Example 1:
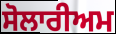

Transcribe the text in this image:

ਸੋਲਾਰੀਅਮ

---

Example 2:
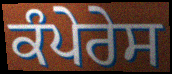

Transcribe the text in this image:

ਕੰਪੇਰੇਸ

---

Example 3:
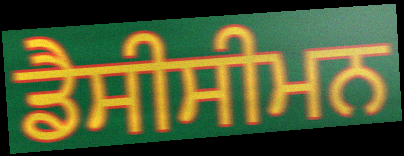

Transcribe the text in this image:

ਡੈਸੀਸੀਮਨ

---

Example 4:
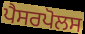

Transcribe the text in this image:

ਪੈਸਰਪੋਲਸ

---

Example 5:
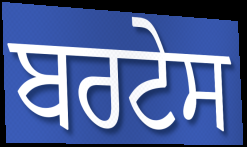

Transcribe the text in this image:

ਬਰਟੇਸ